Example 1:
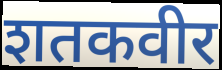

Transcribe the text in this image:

शतकवीर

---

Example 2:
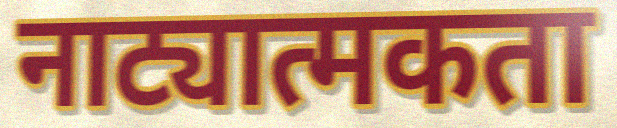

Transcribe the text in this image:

नाट्यात्मकता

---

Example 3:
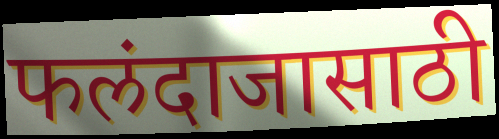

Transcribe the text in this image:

फलंदाजासाठी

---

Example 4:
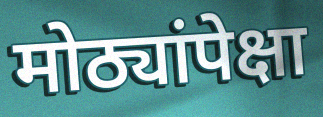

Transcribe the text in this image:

मोठ्यांपेक्षा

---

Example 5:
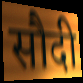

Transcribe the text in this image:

सौदी